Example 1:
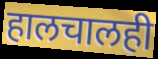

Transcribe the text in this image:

हालचालही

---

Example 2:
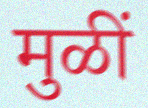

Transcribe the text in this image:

मुळीं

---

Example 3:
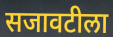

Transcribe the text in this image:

सजावटीला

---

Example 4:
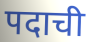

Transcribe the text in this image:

पदाची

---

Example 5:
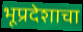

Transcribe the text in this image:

भूप्रदेशाचा